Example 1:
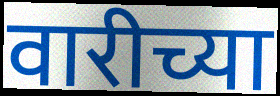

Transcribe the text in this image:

वारीच्या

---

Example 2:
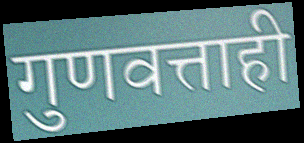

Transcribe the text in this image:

गुणवत्ताही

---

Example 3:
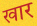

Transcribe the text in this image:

खार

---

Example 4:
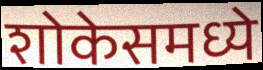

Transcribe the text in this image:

शोकेसमध्ये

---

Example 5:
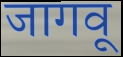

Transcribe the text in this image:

जागवू